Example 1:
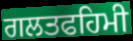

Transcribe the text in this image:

ਗਲਤਫਹਿਮੀ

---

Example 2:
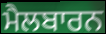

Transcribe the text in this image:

ਮੈਲਬਾਰਨ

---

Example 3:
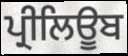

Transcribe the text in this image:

ਪ੍ਰੀਲਿਊਬ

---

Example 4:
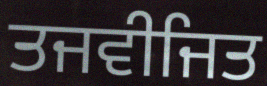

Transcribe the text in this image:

ਤਜਵੀਜਿਤ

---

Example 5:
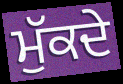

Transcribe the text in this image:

ਮੁੱਕਦੇ